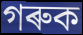
গৰুক